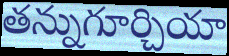
తన్నుగూర్చియా